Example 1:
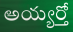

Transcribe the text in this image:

అయ్యర్తో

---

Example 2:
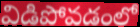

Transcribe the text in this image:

విడిపోవడంలో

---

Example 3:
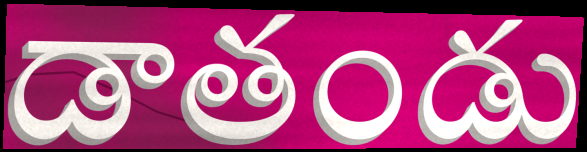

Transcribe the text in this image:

డాతండు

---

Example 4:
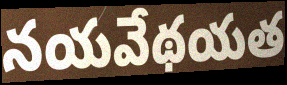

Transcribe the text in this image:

నయవేథయత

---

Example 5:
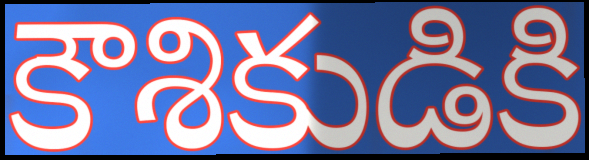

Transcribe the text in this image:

కౌశికుడికి